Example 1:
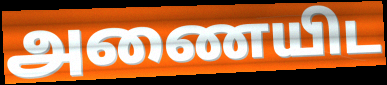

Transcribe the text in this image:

அணையிட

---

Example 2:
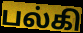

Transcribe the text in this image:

பல்கி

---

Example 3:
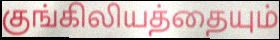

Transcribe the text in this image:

குங்கிலியத்தையும்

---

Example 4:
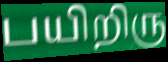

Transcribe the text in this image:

பயிறிரு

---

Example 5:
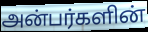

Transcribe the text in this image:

அன்பர்களின்